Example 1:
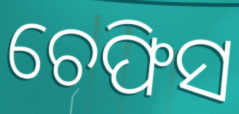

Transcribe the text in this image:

ଚେଫିସ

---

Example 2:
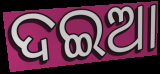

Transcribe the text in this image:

ଦଇଆ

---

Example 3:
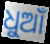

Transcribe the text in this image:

ଧୁଆଁ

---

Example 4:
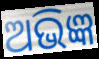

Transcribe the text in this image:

ଅଭିଜ୍ଞ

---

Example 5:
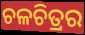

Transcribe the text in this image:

ଚଳଚିତ୍ରର